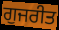
ਗੁਜਰੀਤ